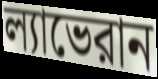
ল্যাভেরান